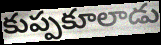
కుప్పకూలాడు